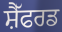
ਸ਼ੈੱਫਰਡ